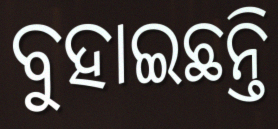
ବୁହାଇଛନ୍ତି